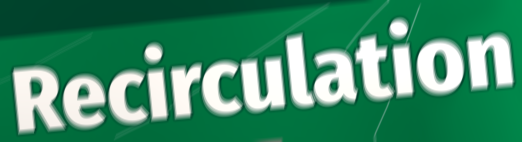
Recirculation